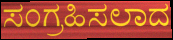
ಸಂಗ್ರಹಿಸಲಾದ